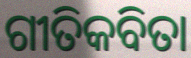
ଗୀତିକବିତା